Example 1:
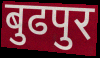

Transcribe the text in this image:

बुढपुर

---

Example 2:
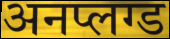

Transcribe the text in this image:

अनप्लग्ड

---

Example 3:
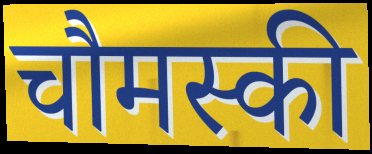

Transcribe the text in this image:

चौमस्की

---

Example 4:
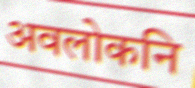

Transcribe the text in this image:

अवलोकनि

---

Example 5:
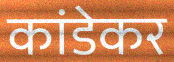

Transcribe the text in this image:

कांडेकर